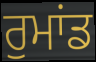
ਰੁਮਾਂਡ